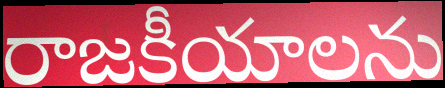
రాజకీయాలను